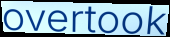
overtook